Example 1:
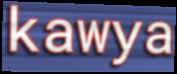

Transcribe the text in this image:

kawya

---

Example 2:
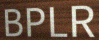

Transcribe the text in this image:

BPLR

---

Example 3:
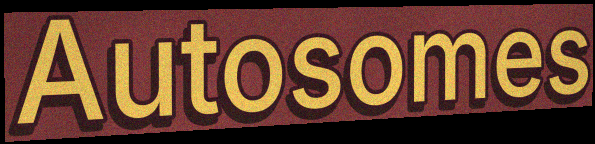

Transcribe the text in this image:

Autosomes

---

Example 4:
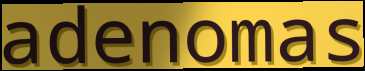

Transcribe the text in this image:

adenomas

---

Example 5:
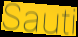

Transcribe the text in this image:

Sauti